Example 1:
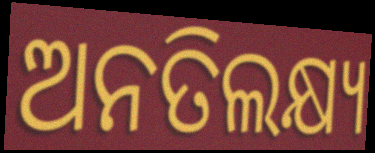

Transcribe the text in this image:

ଅନତିଲକ୍ଷ୍ୟ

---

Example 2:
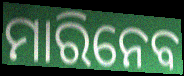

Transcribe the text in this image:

ମାରିନେବ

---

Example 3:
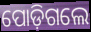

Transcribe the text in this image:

ପୋଡ଼ିଗଲେ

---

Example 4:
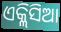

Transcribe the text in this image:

ଏକ୍ଲିସିଆ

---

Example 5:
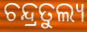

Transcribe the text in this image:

ଚନ୍ଦ୍ରତୁଲ୍ୟ